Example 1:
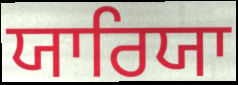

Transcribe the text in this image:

ਯਾਰਿਯਾ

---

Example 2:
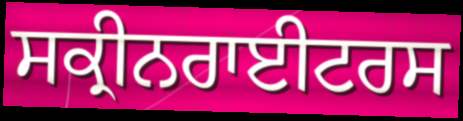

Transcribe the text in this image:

ਸਕ੍ਰੀਨਰਾਈਟਰਸ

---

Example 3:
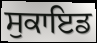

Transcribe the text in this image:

ਸੁਕਾਇਡ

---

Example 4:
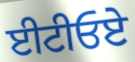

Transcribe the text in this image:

ਈਟੀਓਏ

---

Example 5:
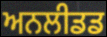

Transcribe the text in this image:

ਅਨਲੀਡਡ